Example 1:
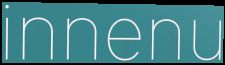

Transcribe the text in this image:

innenu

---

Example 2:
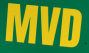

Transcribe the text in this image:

MVD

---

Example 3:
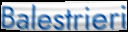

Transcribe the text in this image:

Balestrieri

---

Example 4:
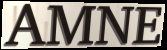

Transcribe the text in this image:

AMNE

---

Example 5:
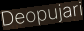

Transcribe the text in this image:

Deopujari